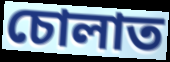
চোলাত